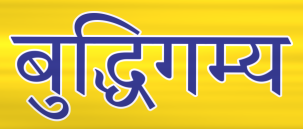
बुद्धिगम्य